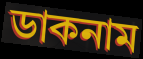
ডাকনাম